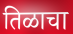
तिळाचा